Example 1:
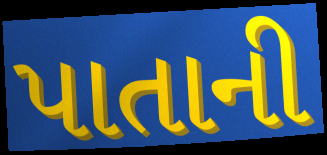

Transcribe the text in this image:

પાતાની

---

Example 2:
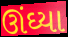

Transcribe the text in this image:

ઊંઘ્યા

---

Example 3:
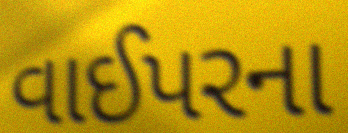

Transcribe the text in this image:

વાઈપરના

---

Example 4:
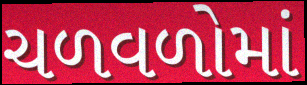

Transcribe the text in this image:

ચળવળોમાં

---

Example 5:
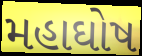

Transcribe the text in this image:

મહાઘોષ